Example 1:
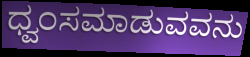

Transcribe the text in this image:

ಧ್ವಂಸಮಾಡುವವನು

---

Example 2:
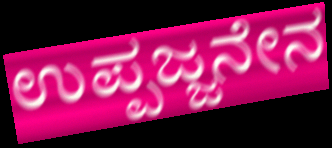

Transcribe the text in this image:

ಉಪ್ಪಜ್ಜನೇನ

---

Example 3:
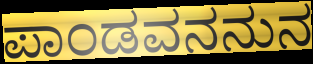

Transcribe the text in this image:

ಪಾಂಡವನನುನ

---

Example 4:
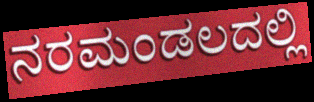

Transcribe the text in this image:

ನರಮಂಡಲದಲ್ಲಿ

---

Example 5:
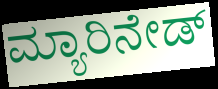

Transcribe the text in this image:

ಮ್ಯಾರಿನೇಡ್